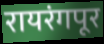
रायरंगपूर